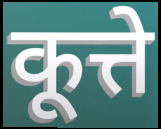
कूत्ते